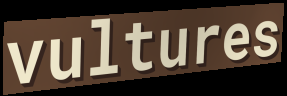
vultures